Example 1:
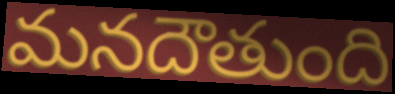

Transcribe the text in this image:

మనదౌతుంది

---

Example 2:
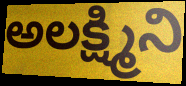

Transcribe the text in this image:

అలక్ష్మిని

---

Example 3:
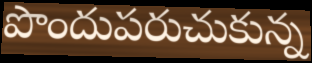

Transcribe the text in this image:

పొందుపరుచుకున్న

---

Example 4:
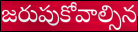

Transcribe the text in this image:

జరుపుకోవాల్సిన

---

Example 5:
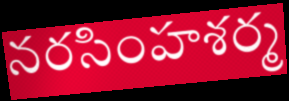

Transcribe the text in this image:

నరసింహశర్మ